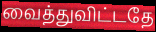
வைத்துவிட்டதே